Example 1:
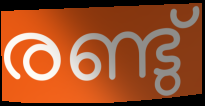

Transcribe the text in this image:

രണ്ടു്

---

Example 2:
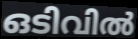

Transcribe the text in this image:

ഒടിവിൽ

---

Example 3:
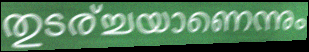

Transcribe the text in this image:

തുടര്ച്ചയാണെന്നും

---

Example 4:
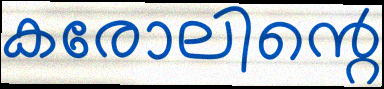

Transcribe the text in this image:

കരോലിന്റെ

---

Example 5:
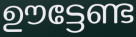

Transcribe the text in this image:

ഊട്ടേണ്ട